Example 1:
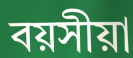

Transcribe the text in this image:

বয়সীয়া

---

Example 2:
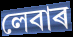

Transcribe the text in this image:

লেবাৰ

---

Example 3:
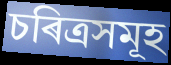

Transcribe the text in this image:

চৰিত্ৰসমূহ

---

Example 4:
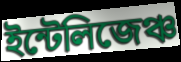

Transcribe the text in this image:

ইন্টেলিজেঞ্চ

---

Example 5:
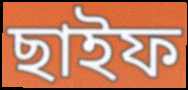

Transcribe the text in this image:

ছাইফ